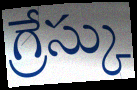
గ్రేస్కు